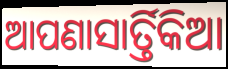
ଆପଣାସାର୍ତ୍ତିକିଆ